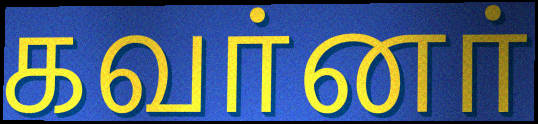
கவர்னர்